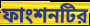
ফাংশনটির